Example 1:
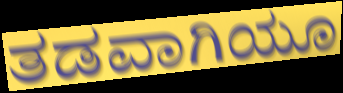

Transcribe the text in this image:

ತಡವಾಗಿಯೂ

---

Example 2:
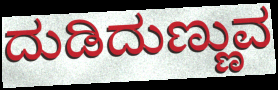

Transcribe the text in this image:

ದುಡಿದುಣ್ಣುವ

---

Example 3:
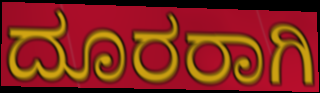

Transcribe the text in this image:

ದೂರರಾಗಿ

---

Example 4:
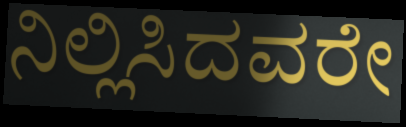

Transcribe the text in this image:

ನಿಲ್ಲಿಸಿದವರೇ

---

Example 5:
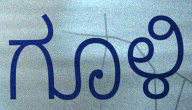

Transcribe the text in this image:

ಗೂಳಿ